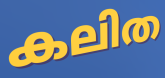
കലിത